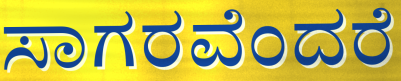
ಸಾಗರವೆಂದರೆ